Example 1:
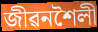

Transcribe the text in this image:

জীৱনশৈলী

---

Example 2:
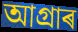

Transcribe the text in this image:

আগ্ৰাৰ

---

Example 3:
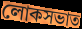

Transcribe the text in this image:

লোকসভাত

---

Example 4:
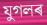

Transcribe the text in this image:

যুগলৰ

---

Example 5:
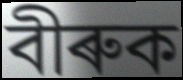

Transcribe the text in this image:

বীৰুক